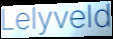
Lelyveld